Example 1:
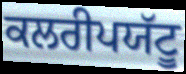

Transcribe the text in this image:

ਕਲਰੀਪਯੱਟੂ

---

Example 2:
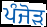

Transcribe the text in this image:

ਪੰਜੋੜ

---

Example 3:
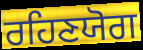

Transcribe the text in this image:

ਰਹਿਣਯੋਗ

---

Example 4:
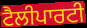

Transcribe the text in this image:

ਟੈਲੀਪਾਰਟੀ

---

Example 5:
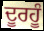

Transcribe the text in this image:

ਦੂਰਹੂੰ